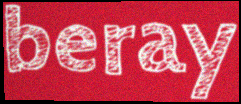
beray